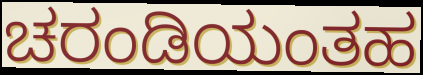
ಚರಂಡಿಯಂತಹ